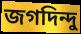
জগদিন্দু